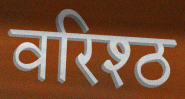
वरिश्ठ